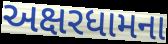
અક્ષરધામના